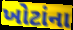
ખોટાંના